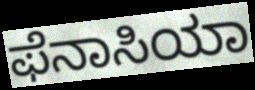
ಫೆನಾಸಿಯಾ